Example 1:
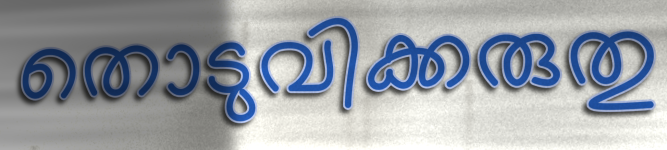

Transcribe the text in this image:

തൊടുവിക്കരുതു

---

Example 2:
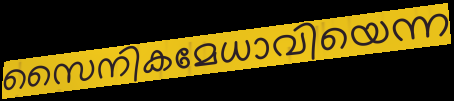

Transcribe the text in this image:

സൈനികമേധാവിയെന്ന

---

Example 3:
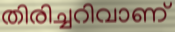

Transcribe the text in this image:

തിരിച്ചറിവാണ്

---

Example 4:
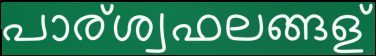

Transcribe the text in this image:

പാര്ശ്വഫലങ്ങള്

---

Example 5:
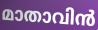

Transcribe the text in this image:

മാതാവിൻ